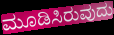
ಮೂಡಿಸಿರುವುದು